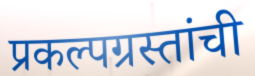
प्रकल्पग्रस्तांची